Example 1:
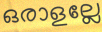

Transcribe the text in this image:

ഒരാളല്ലേ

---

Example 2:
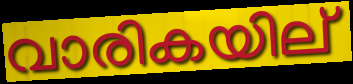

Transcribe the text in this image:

വാരികയില്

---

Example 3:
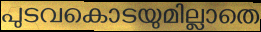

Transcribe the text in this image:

പുടവകൊടയുമില്ലാതെ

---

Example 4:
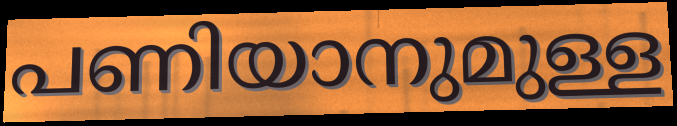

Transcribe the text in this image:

പണിയാനുമുള്ള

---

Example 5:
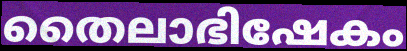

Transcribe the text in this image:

തൈലാഭിഷേകം